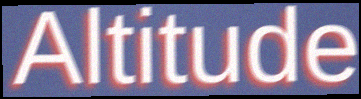
Altitude